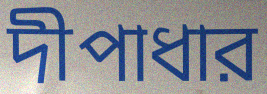
দীপাধার